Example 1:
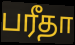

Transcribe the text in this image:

பரீதா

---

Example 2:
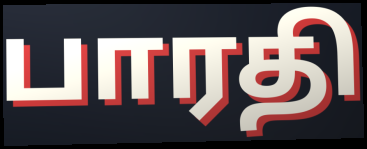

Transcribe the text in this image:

பாரதி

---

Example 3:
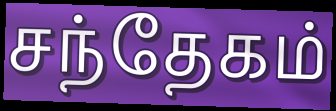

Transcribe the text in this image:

சந்தேகம்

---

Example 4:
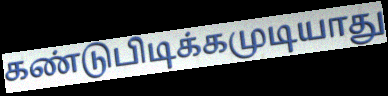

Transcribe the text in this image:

கண்டுபிடிக்கமுடியாது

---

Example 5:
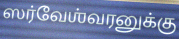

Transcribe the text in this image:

ஸர்வேஶ்வரனுக்கு